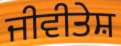
ਜੀਵੀਤੇਸ਼